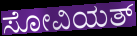
ಸೋವಿಯತ್